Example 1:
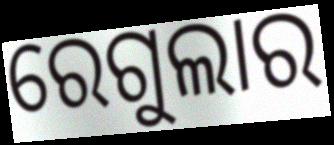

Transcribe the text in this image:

ରେଗୁଲାର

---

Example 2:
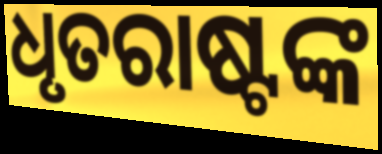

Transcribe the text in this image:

ଧୃତରାଷ୍ଟଙ୍କ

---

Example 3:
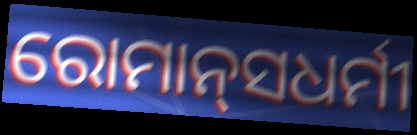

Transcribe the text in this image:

ରୋମାନ୍‌ସଧର୍ମୀ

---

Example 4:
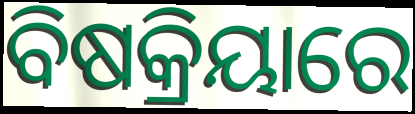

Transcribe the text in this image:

ବିଷକ୍ରିୟାରେ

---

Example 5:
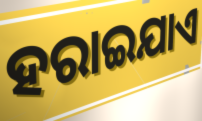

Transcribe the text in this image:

ହରାଇଯାଏ